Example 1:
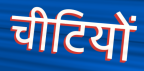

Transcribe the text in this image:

चीटियों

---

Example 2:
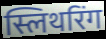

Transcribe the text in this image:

स्लिथरिंग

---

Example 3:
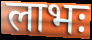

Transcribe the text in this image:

लाभः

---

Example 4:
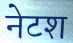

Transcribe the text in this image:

नेटश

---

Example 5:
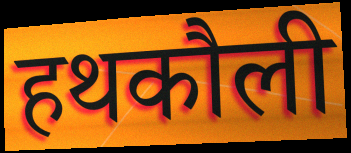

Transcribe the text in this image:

हथकौली